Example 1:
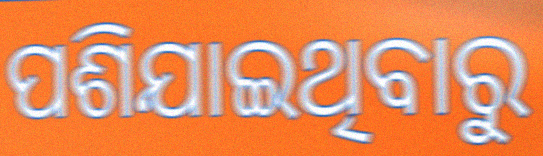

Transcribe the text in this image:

ପଶିଯାଇଥିବାରୁ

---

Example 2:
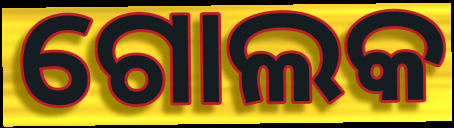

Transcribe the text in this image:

ଗୋଲକ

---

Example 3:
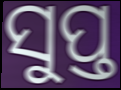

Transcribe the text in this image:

ସୁପ୍ତ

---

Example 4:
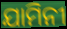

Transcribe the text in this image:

ଯାମିନୀ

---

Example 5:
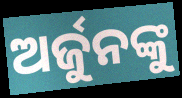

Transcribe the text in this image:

ଅର୍ଜୁନଙ୍କୁ